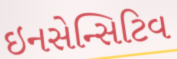
ઇનસેન્સિટિવ